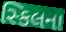
સ્કિલના